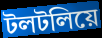
টলটলিয়ে